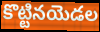
కొట్టినయెడల